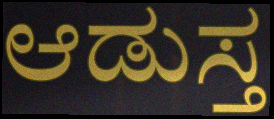
ಆಡುಸ್ತ